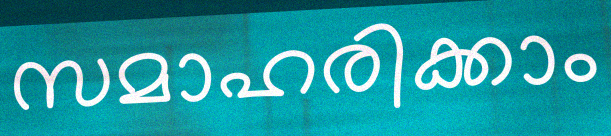
സമാഹരിക്കാം